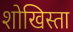
शोखिस्ता